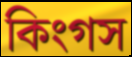
কিংগস